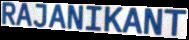
RAJANIKANT